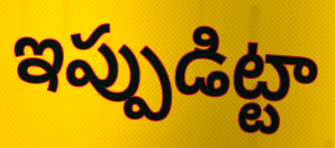
ఇప్పుడిట్టా